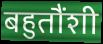
बहुतौंशी